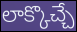
లాక్కొచ్చే